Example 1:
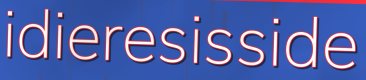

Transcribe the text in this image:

idieresisside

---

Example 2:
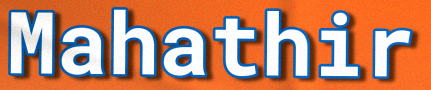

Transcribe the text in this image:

Mahathir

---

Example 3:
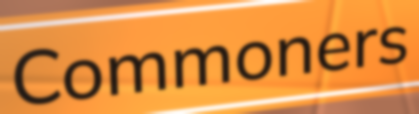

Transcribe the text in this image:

Commoners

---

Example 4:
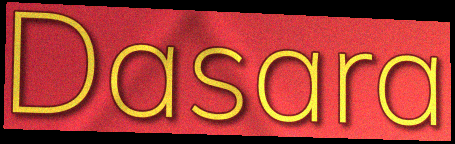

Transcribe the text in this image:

Dasara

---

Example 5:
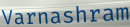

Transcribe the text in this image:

Varnashram